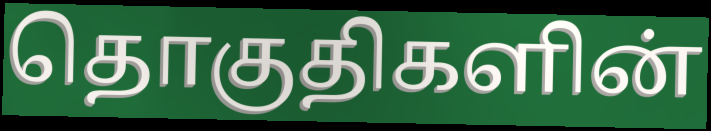
தொகுதிகளின்